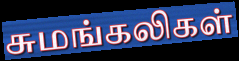
சுமங்கலிகள்